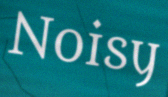
Noisy